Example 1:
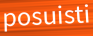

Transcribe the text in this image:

posuisti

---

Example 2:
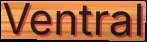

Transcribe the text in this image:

Ventral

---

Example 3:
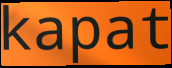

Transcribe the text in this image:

kapat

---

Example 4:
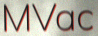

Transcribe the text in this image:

MVac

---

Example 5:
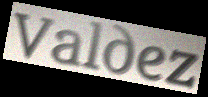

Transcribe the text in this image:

Valdez